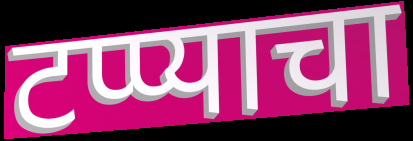
टप्प्याचा